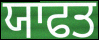
ਯਾਫਤ